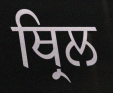
ਥ੍ਰਿਲ